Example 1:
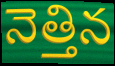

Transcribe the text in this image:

నెత్తిన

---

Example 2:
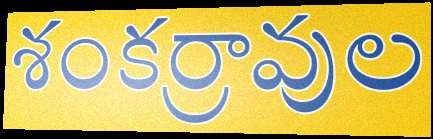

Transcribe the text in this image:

శంకర్రావుల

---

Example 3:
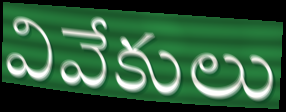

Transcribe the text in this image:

వివేకులు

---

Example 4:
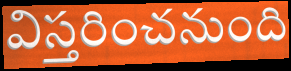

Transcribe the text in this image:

విస్తరించనుంది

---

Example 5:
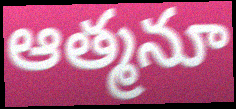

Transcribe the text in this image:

ఆత్మనూ